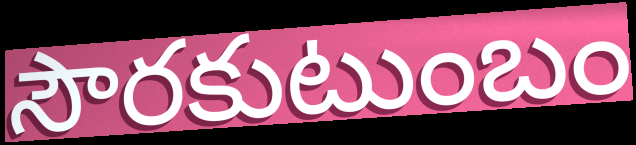
సౌరకుటుంబం